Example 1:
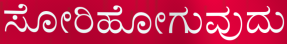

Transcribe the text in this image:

ಸೋರಿಹೋಗುವುದು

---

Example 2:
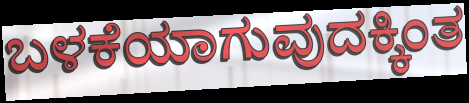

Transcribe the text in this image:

ಬಳಕೆಯಾಗುವುದಕ್ಕಿಂತ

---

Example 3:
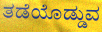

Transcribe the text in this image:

ತಡೆಯೊಡ್ಡುವ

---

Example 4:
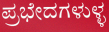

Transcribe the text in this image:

ಪ್ರಭೇದಗಳುಳ್ಳ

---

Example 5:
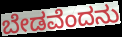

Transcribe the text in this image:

ಬೇಡವೆಂದನು